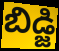
బిడ్జి